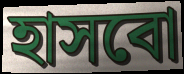
হাসবো